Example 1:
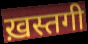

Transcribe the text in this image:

ख़स्तगी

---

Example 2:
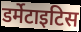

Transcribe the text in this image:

डर्मेटाइटिस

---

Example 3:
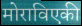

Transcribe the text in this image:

मोराविएकी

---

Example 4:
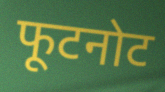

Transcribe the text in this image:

फूटनोट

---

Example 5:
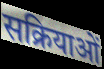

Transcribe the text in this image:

सक्रियाओं